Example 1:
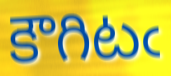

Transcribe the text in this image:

కౌగిటఁ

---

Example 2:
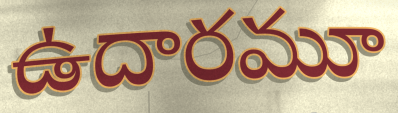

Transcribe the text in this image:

ఉదారమూ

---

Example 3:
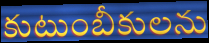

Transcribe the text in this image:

కుటుంబీకులను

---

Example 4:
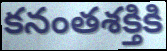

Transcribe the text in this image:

కనంతశక్తికి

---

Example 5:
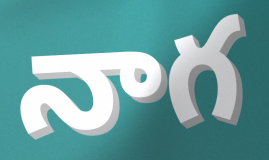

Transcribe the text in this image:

నాగ